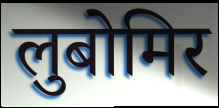
लुबोमिर